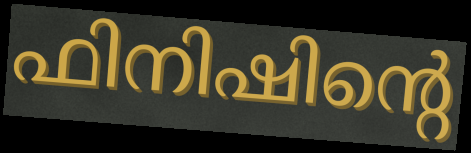
ഫിനിഷിന്റെ